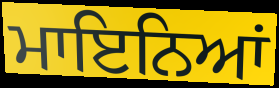
ਮਾਇਨਿਆਂ